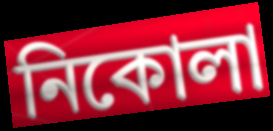
নিকোলা